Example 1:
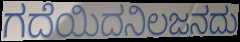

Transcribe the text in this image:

ಗದೆಯಿದನಿಲಜನದು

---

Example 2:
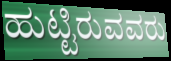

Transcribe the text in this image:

ಹುಟ್ಟಿರುವವರು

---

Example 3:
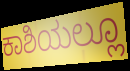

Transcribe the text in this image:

ಕಾಶಿಯಲ್ಲೂ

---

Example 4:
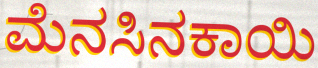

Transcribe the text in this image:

ಮೆನಸಿನಕಾಯಿ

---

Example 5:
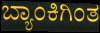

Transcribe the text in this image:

ಬ್ಯಾಂಕಿಗಿಂತ